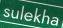
sulekha